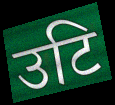
उटि